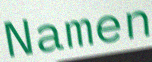
Namen